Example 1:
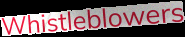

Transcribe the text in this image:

Whistleblowers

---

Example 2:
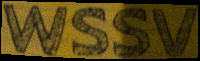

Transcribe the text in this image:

WSSV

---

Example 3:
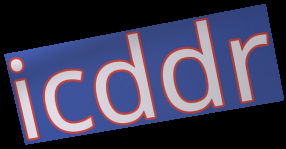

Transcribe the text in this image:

icddr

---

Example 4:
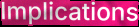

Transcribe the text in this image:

Implications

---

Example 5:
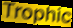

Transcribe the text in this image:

Trophic